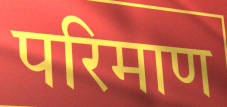
परिमाण